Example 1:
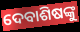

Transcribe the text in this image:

ଦେବାଶିଷଙ୍କୁ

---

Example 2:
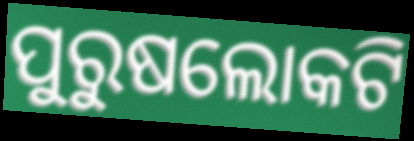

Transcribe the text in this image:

ପୁରୁଷଲୋକଟି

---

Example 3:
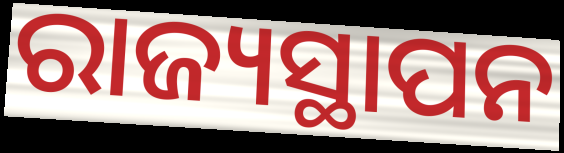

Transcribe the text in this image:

ରାଜ୍ୟସ୍ଥାପନ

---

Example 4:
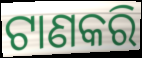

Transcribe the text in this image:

ଟାଣକରି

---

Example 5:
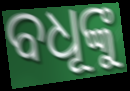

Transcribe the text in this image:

ବଧୂଙ୍କୁ